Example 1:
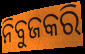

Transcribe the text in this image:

ନିବୁଜକରି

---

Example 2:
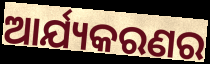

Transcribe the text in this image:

ଆର୍ଯ୍ୟକରଣର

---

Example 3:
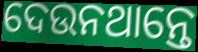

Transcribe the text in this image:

ଦେଉନଥାନ୍ତେ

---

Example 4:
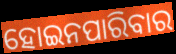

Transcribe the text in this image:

ହୋଇନପାରିବାର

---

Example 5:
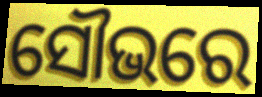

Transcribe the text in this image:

ସୌଭରେ